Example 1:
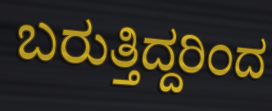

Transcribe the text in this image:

ಬರುತ್ತಿದ್ದರಿಂದ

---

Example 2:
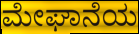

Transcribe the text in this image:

ಮೇಘಾನೆಯ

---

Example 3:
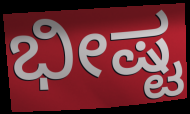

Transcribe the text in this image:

ಭೀಷ್ಟ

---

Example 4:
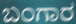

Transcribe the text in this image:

ಬಂಗಾರ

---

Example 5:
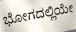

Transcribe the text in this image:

ಭೋಗದಲ್ಲಿಯೇ